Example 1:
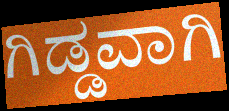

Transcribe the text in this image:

ಗಿಡ್ಡವಾಗಿ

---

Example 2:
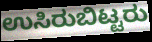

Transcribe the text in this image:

ಉಸಿರುಬಿಟ್ಟರು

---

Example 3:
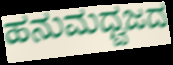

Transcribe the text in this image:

ಹನುಮಧ್ವಜದ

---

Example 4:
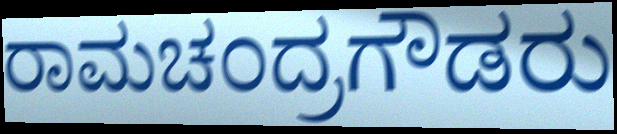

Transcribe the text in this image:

ರಾಮಚಂದ್ರಗೌಡರು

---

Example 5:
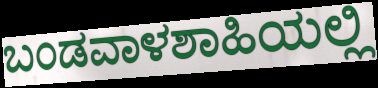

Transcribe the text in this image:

ಬಂಡವಾಳಶಾಹಿಯಲ್ಲಿ